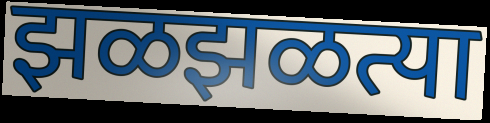
झळझळत्या